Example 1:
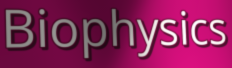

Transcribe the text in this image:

Biophysics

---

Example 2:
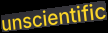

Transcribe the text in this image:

unscientific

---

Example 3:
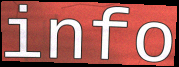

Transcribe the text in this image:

info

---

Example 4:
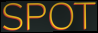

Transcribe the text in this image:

SPOT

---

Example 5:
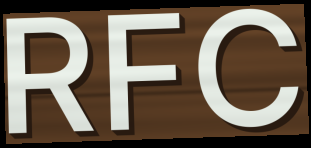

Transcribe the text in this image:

RFC